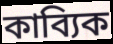
কাব্যিক